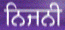
ਨਿਜਨੀ